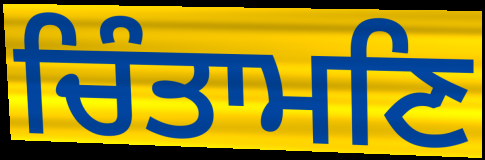
ਚਿੰਤਾਮਣਿ